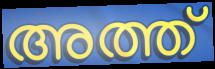
അത്ത്